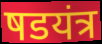
षडयंत्र